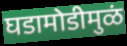
घडामोडीमुळं